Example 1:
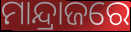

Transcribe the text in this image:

ମାନ୍ଦ୍ରାଜରେ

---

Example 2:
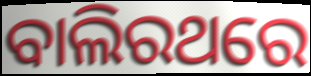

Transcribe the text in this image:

ବାଲିରଥରେ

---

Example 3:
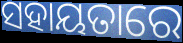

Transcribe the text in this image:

ସହାୟତାରେ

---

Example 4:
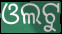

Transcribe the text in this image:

ଓଲଟୁ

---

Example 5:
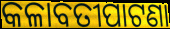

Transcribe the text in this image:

କଳାବତୀପାଟଣା